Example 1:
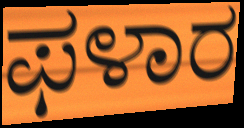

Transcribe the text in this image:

ಫಳಾರ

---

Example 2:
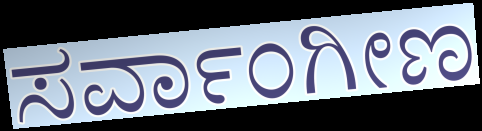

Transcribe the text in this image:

ಸರ್ವಾಂಗೀಣ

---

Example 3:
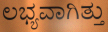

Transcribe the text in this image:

ಲಭ್ಯವಾಗಿತ್ತು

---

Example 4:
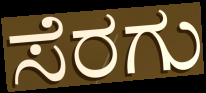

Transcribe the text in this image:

ಸೆರಗು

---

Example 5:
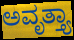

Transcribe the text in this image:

ಅವೃತ್ತ್ಯಾ